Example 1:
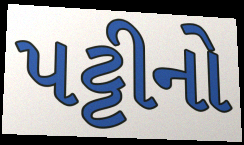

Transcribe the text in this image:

પટ્ટીનો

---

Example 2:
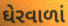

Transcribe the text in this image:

ઘેરવાળાં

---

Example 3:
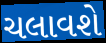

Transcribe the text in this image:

ચલાવશે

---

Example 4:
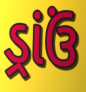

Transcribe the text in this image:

ડ્રાંઉં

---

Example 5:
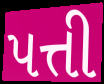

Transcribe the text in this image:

પત્તી